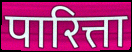
पारित्ता